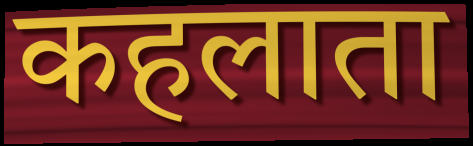
कहलाता